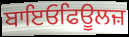
ਬਾਇਓਫਿਊਲਜ਼